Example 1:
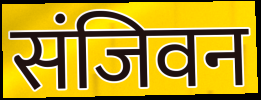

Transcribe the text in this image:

संजिवन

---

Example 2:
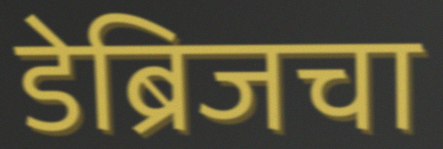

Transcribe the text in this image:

डेब्रिजचा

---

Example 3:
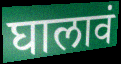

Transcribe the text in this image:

घालावं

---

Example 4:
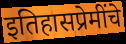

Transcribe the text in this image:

इतिहासप्रेमींचे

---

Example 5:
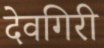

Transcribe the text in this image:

देवगिरी